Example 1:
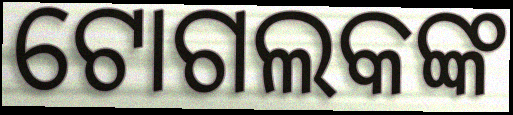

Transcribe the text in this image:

ଟୋଗଲକଙ୍କ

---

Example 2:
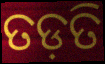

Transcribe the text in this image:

ତଡ଼ତି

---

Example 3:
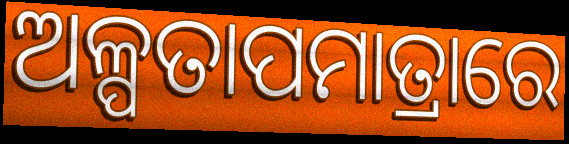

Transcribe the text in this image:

ଅଳ୍ପତାପମାତ୍ରାରେ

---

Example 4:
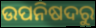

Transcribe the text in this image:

ଉପନିଷଦରୁ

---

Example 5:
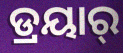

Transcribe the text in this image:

ଡ୍ରୟାର୍